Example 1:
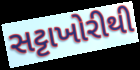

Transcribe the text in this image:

સટ્ટાખોરીથી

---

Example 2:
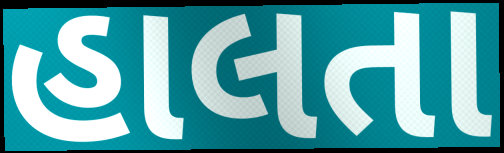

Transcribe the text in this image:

હાલતા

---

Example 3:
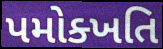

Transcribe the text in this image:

પમોક્ખતિ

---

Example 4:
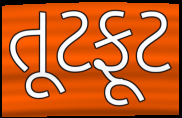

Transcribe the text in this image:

તૂટફૂટ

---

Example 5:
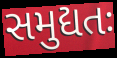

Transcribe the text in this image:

સમુદ્યતઃ